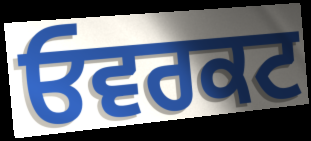
ਓਵਰਕਟ